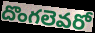
దొంగలెవరో